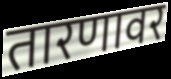
तारणावर